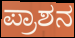
ಪ್ರಾಶನ